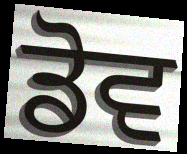
ਡੋਵ